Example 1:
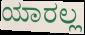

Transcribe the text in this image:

ಯಾರಲ್ಲ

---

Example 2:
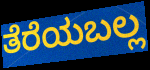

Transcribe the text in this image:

ತೆರೆಯಬಲ್ಲ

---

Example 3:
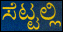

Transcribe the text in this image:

ಸೆಟ್ಟಲ್ಲಿ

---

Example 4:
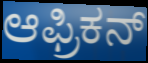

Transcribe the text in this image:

ಆಫ್ರಿಕನ್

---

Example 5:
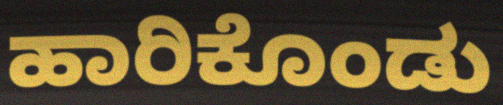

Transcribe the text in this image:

ಹಾರಿಕೊಂಡು